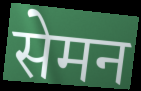
सेमन